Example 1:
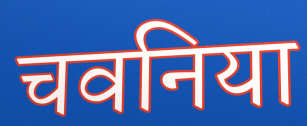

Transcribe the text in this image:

चवनिया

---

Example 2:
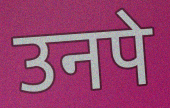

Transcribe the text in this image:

उनपे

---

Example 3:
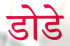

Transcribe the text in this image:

डोडे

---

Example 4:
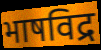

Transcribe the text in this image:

भाषविद्र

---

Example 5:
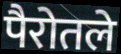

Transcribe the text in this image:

पैरोतले